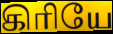
கிரியே